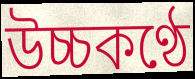
উচ্চকণ্ঠে